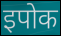
इपोक